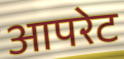
आपरेट